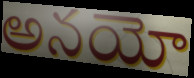
అనయో